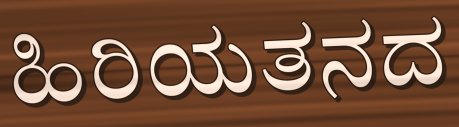
ಹಿರಿಯತನದ